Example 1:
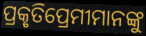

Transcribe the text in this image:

ପ୍ରକୃତିପ୍ରେମୀମାନଙ୍କୁ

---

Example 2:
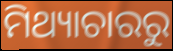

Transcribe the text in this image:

ମିଥ୍ୟାଚାରରୁ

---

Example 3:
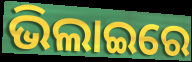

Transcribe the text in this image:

ଭିଲାଇରେ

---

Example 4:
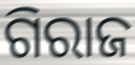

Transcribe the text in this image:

ଗିରାଜ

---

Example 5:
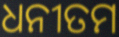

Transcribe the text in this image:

ଧନୀତମ